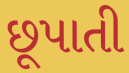
છૂપાતી